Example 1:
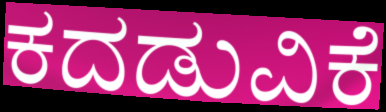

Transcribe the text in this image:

ಕದಡುವಿಕೆ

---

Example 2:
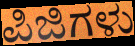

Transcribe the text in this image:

ಪಿಜಿಗಳು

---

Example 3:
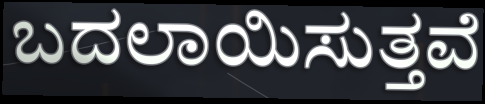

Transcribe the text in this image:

ಬದಲಾಯಿಸುತ್ತವೆ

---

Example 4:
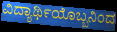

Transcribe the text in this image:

ವಿದ್ಯಾರ್ಥಿಯೊಬ್ಬನಿಂದ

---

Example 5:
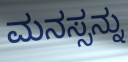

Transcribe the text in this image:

ಮನಸ್ಸನ್ನು